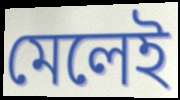
মেলেই